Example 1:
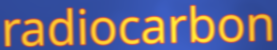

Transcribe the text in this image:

radiocarbon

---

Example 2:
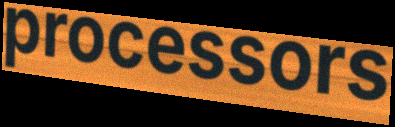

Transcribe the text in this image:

processors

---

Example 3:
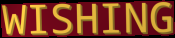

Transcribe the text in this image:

WISHING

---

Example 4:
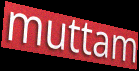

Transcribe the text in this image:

muttam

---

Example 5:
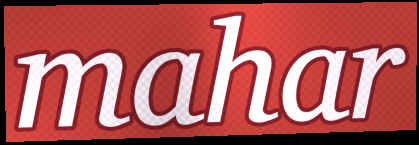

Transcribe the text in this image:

mahar